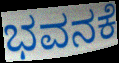
ಭವನಕೆ